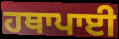
ਹਥਾਪਾਈ